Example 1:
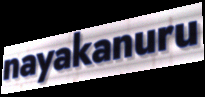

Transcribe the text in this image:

nayakanuru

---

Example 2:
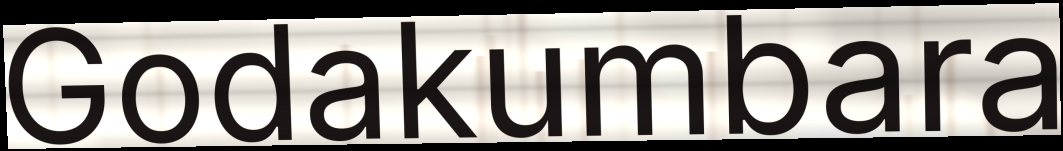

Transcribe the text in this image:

Godakumbara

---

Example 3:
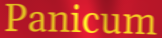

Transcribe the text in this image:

Panicum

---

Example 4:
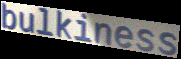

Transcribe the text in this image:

bulkiness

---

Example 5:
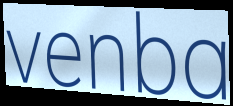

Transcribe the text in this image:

venba